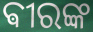
ଵୀରଙ୍କ